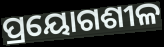
ପ୍ରୟୋଗଶୀଳ